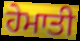
ਹੇਮਾਤੀ